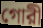
গোরী